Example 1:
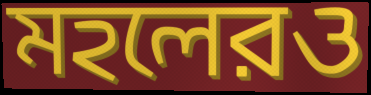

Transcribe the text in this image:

মহলেরও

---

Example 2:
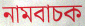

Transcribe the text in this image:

নামবাচক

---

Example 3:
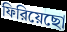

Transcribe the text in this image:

ফিরিয়েছো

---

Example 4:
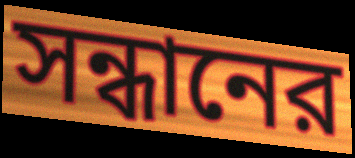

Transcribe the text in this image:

সন্ধানের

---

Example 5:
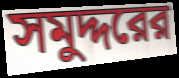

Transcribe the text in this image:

সমুদ্দরের